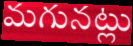
మగునట్లు